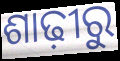
ଶାଢ଼ୀରୁ